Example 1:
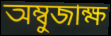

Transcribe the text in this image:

অম্বুজাক্ষ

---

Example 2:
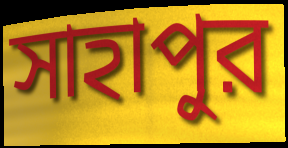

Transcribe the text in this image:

সাহাপুর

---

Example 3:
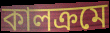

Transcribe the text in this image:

কালক্রমে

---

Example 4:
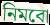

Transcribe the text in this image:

নিমবো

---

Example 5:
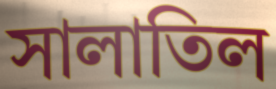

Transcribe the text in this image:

সালাতিল